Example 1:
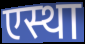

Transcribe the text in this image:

एस्था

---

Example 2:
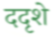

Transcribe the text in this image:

ददृशे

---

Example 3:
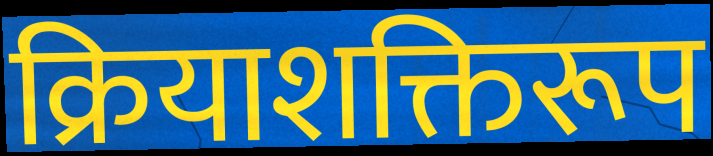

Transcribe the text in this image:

क्रियाशक्तिरूप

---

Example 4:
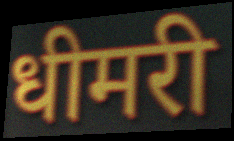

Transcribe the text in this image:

धीमरी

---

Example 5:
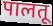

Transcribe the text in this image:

पालतू